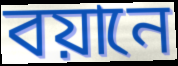
বয়ানে